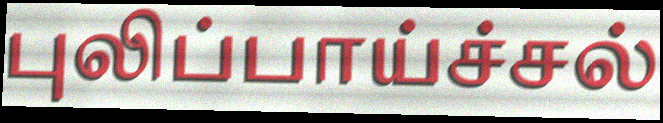
புலிப்பாய்ச்சல்